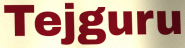
Tejguru